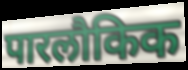
पारलौकिक